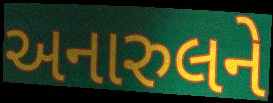
અનારુલને